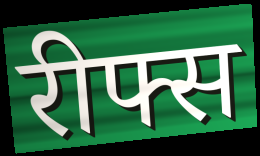
रीफ्स